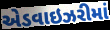
એડવાઇઝરીમાં